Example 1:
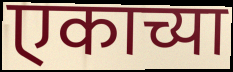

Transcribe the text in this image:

एकाच्या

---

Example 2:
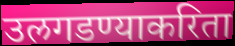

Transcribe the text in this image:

उलगडण्याकरिता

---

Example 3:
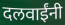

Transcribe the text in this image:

दलवाईंनी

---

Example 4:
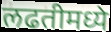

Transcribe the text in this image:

लढतीमध्ये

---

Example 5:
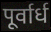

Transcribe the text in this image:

पूर्वार्ध